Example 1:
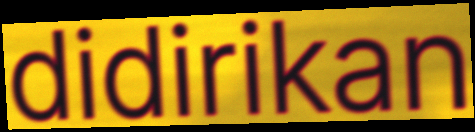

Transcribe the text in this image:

didirikan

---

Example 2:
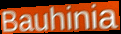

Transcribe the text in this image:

Bauhinia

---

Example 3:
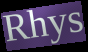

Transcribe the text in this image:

Rhys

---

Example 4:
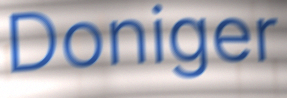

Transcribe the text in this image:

Doniger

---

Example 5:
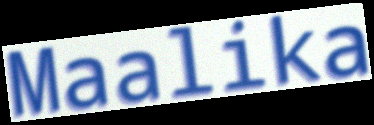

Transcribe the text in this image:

Maalika